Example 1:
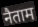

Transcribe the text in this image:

नैताम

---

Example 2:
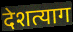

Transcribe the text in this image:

देशत्याग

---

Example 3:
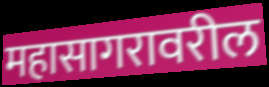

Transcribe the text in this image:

महासागरावरील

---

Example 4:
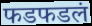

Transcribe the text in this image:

फडफडलं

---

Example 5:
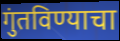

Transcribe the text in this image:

गुंतविण्याचा